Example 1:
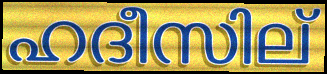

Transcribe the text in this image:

ഹദീസില്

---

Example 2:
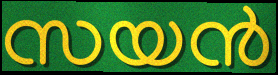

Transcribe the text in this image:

സയൻ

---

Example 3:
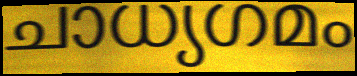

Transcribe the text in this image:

ചാധ്യഗമം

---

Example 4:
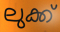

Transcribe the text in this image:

ലുക്ക്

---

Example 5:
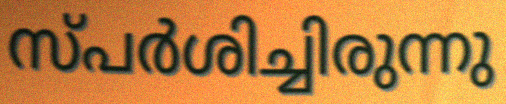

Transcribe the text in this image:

സ്പർശിച്ചിരുന്നു